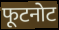
फूटनोट